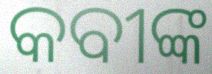
କବୀଙ୍କ